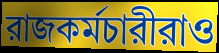
রাজকর্মচারীরাও